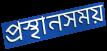
প্রস্থানসময়